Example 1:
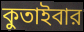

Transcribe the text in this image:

কুতাইবার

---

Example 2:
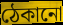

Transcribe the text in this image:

ঠেকানো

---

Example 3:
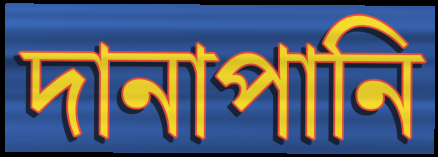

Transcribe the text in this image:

দানাপানি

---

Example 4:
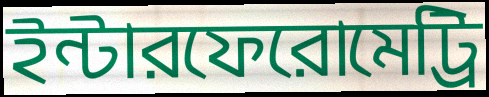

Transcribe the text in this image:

ইন্টারফেরোমেট্রি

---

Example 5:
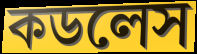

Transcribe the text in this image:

কডলেস